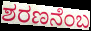
ಶರಣನೆಂಬ